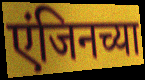
एंजिनच्या